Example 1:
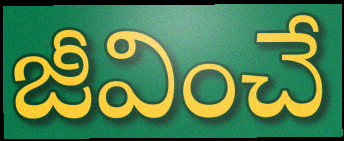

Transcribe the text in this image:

జీవించే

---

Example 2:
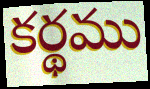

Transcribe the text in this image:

కర్థము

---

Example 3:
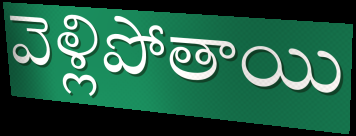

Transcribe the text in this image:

వెళ్లిపోతాయి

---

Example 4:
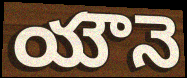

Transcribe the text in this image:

యౌనె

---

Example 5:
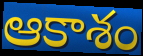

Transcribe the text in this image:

ఆకాశం